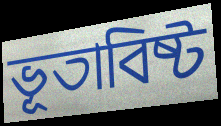
ভূতাবিষ্ট